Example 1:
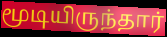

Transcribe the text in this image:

மூடியிருந்தார்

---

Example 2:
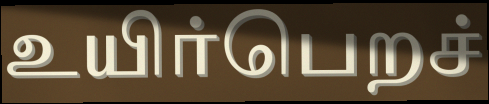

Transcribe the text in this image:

உயிர்பெறச்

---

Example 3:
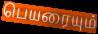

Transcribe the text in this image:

பெயரையும்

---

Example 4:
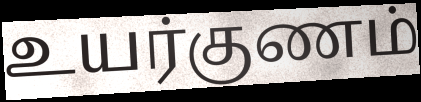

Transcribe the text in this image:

உயர்குணம்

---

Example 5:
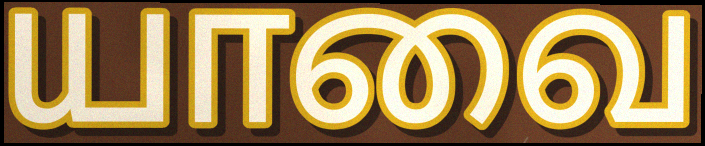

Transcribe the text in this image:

யாவை